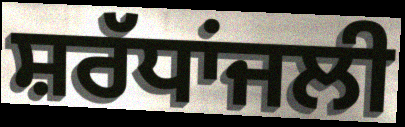
ਸ਼ਰੱਧਾਂਜਲੀ